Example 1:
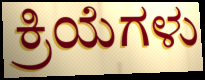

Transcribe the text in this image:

ಕ್ರಿಯೆಗಳು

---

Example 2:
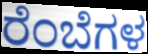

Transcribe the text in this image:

ರೆಂಬೆಗಳ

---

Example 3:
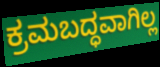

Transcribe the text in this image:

ಕ್ರಮಬದ್ಧವಾಗಿಲ್ಲ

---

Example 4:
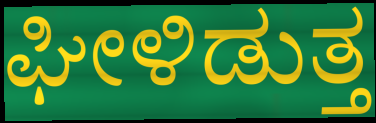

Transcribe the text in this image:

ಘೀಳಿಡುತ್ತ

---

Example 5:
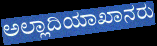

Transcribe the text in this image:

ಅಲ್ಲಾದಿಯಾಖಾನರು